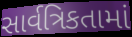
સાર્વત્રિકતામાં